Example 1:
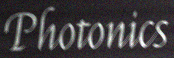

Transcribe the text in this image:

Photonics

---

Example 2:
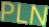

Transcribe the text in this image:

PLN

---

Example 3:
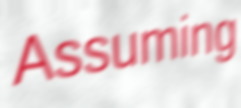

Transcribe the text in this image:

Assuming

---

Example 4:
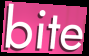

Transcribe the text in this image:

bite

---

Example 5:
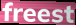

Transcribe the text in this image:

freest